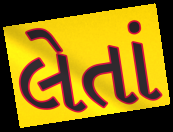
લેતાં